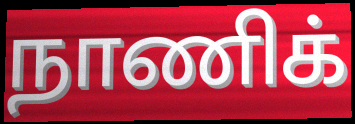
நாணிக்